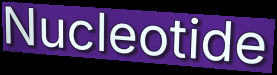
Nucleotide